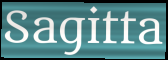
Sagitta